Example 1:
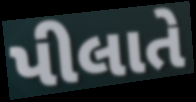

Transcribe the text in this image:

પીલાતે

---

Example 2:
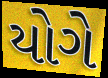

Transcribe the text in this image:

યોગે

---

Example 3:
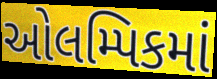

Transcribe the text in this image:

ઓલમ્પિકમાં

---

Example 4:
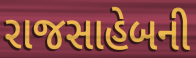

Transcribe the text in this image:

રાજસાહેબની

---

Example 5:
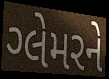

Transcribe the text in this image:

ગ્લેમરને